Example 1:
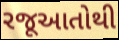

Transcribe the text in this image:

રજૂઆતોથી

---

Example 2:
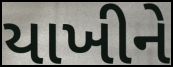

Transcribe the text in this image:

યાખીને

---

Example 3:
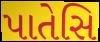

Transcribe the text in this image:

પાતેસિ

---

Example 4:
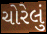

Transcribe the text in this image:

ચોરેલું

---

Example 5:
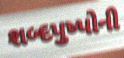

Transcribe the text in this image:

શબ્દપુષ્પોની